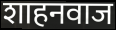
शाहनवाज